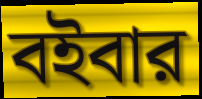
বইবার